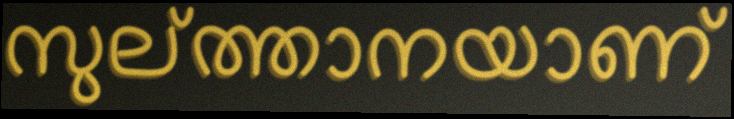
സുല്ത്താനയാണ്